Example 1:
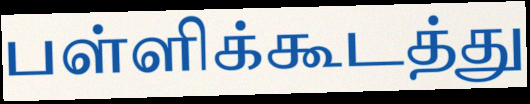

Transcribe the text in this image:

பள்ளிக்கூடத்து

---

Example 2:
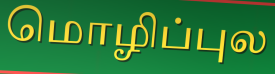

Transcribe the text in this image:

மொழிப்புல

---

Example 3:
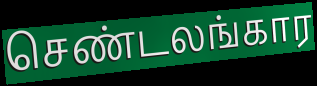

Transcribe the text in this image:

செண்டலங்கார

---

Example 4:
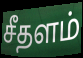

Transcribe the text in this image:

சீதளம்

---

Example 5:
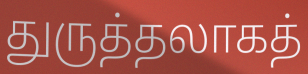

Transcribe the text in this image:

துருத்தலாகத்